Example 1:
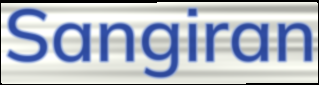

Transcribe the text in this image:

Sangiran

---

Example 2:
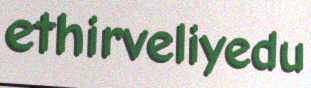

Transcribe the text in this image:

ethirveliyedu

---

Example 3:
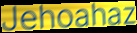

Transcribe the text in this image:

Jehoahaz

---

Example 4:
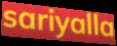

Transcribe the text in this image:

sariyalla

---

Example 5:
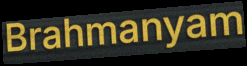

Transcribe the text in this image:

Brahmanyam